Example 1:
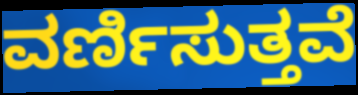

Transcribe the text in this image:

ವರ್ಣಿಸುತ್ತವೆ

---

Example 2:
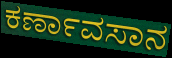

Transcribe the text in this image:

ಕರ್ಣಾವಸಾನ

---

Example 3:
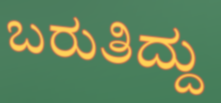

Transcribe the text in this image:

ಬರುತಿದ್ದು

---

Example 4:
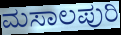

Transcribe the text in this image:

ಮಸಾಲಪುರಿ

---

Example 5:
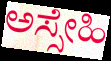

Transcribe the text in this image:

ಅಸ್ಸೇಹಿ